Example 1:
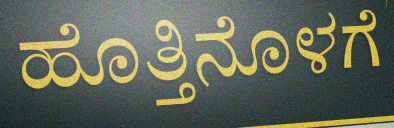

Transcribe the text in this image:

ಹೊತ್ತಿನೊಳಗೆ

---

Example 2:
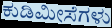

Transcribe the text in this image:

ಕುಡಿಮೀಸೆಗಳು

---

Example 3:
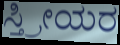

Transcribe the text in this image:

ಸ್ತ್ರೀಯರ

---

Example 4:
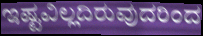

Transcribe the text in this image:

ಇಷ್ಟವಿಲ್ಲದಿರುವುದರಿಂದ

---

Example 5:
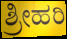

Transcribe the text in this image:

ಶ್ರೀಹರಿ